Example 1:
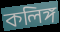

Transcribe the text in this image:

কলিঙ্গ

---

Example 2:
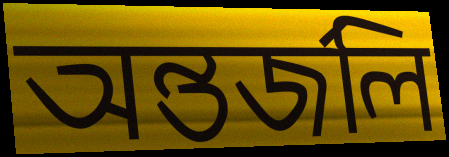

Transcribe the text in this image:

অন্তর্জলি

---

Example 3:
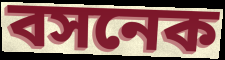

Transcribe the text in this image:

বসনেক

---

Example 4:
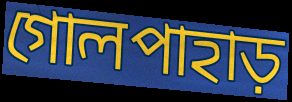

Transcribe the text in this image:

গোলপাহাড়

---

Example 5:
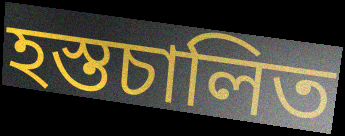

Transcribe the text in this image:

হস্তচালিত